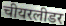
चीयरलीडर